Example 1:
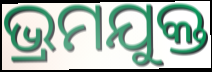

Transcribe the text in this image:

ଭ୍ରମଯୁକ୍ତ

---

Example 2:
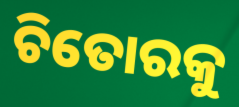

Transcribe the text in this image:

ଚିତୋରକୁ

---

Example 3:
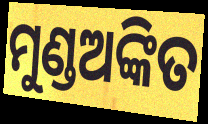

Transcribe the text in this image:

ମୁଣ୍ଡଅଙ୍କିତ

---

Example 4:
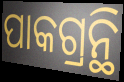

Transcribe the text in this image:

ପାକଗ୍ରନ୍ଥି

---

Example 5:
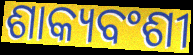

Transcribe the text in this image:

ଶାକ୍ୟବଂଶୀ